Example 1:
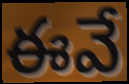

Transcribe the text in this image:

ఈవే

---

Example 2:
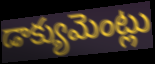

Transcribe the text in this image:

డాక్యుమెంట్లు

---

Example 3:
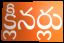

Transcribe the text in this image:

క్లీనర్లు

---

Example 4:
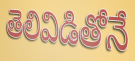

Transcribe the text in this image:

తెలివిడితోనే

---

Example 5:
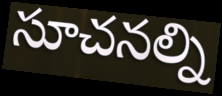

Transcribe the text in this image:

సూచనల్ని